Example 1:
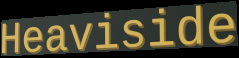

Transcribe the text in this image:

Heaviside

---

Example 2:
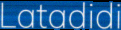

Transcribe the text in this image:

Latadidi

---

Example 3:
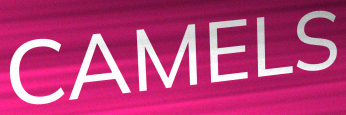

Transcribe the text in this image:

CAMELS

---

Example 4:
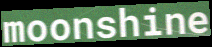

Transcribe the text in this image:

moonshine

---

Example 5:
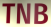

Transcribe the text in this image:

TNB